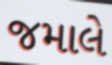
જમાલે